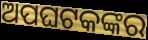
ଅପଘଟକଙ୍କର